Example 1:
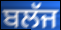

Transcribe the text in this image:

ਬਲੱਜ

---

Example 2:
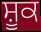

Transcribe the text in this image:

ਸ਼ੂਕ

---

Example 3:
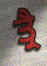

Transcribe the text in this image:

ਤ੍ਰੈ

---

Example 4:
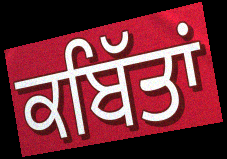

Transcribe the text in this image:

ਕਬਿੱਤਾਂ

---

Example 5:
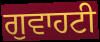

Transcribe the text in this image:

ਗੁਵਾਹਟੀ